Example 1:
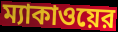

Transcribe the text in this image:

ম্যাকাওয়ের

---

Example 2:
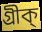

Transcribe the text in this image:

গ্রীক্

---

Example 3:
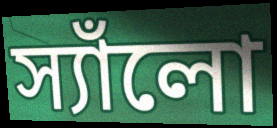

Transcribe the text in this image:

স্যাঁলো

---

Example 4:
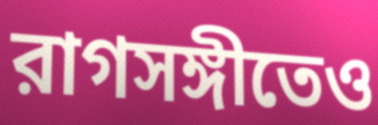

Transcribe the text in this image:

রাগসঙ্গীতেও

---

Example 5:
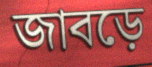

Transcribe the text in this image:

জাবড়ে